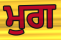
ਮੁਗ